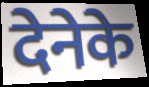
देनेके